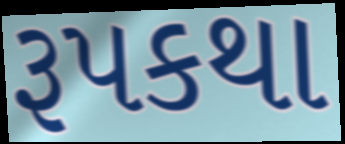
રૂપકથા